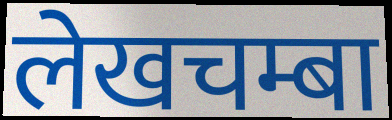
लेखचम्बा